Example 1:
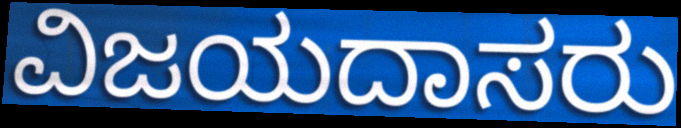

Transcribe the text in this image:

ವಿಜಯದಾಸರು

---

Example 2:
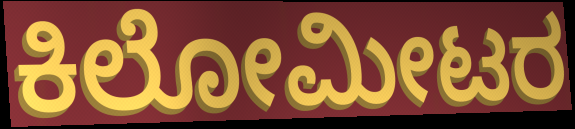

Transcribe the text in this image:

ಕಿಲೋಮೀಟರ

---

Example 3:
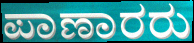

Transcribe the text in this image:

ಪಾಣಾರರು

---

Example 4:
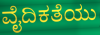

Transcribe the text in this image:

ವೈದಿಕತೆಯು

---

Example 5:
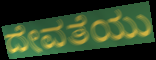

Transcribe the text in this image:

ದೇವತೆಯು